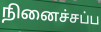
நினைச்சப்ப